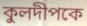
কুলদীপকে